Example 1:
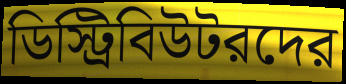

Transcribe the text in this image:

ডিস্ট্রিবিউটরদের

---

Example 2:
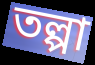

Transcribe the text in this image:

তল্পা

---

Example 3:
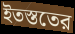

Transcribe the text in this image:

ইতস্ততের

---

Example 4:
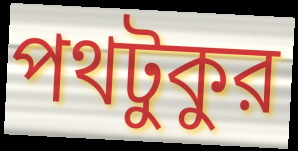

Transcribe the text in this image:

পথটুকুর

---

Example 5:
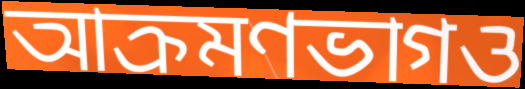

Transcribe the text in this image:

আক্রমণভাগও